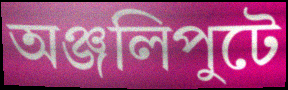
অঞ্জলিপুটে